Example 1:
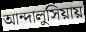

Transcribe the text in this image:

আন্দালুসিয়ায়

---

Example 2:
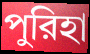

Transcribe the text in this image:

পুরিহা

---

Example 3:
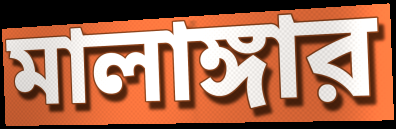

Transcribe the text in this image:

মালাঙ্গার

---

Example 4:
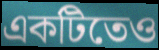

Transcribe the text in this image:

একটিতেও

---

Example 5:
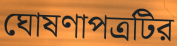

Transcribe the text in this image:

ঘোষণাপত্রটির